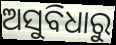
ଅସୁବିଧାରୁ